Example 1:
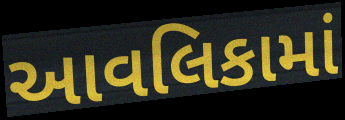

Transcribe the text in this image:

આવલિકામાં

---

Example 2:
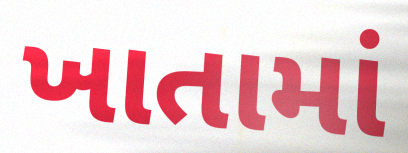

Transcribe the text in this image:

ખાતામાં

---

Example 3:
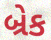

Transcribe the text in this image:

બ્રેક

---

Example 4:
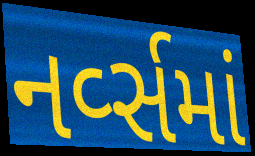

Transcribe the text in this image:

નર્વ્સમાં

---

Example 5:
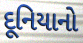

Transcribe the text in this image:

દૂનિયાનો